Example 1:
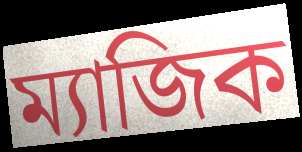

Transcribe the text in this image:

ম্যাজিক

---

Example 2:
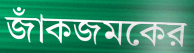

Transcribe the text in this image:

জাঁকজমকের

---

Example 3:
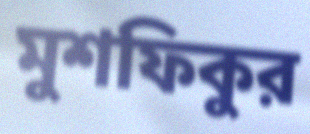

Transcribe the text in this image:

মুশফিকুর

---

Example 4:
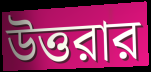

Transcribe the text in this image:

উত্তরার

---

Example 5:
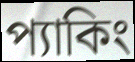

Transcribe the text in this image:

প্যাকিং